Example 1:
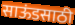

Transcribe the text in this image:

साऊंडसाठी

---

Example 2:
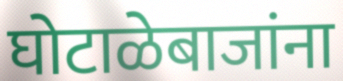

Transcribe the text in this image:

घोटाळेबाजांना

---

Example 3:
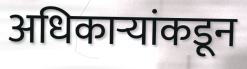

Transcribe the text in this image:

अधिकाऱ्यांकडून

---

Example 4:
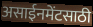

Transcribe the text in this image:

असाईनमेंटसाठी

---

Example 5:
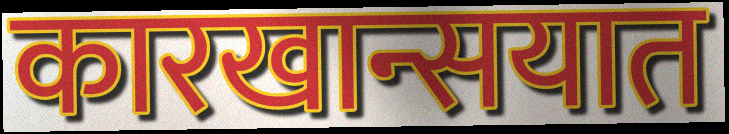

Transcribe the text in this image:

कारखान्सयात